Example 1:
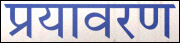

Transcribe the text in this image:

प्रयावरण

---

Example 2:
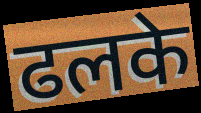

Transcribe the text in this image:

ढलके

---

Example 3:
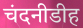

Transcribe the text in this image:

चंदनीडीह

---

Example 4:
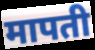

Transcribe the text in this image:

मापती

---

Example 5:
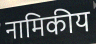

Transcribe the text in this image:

नामिकीय